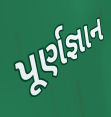
પૂર્ણજ્ઞાન